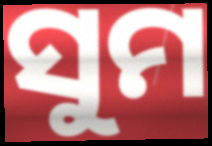
ସୁମ